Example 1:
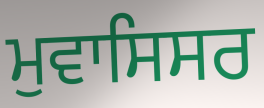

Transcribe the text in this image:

ਮੁਵਾਸਿਸਰ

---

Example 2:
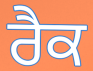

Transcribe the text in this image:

ਰੈਕ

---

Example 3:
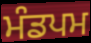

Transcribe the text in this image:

ਮੰਡਪਮ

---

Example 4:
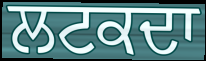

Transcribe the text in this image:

ਲਟਕਦਾ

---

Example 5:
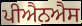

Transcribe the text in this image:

ਪੀਐਨਐਸ